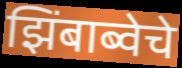
झिंबाब्वेचे